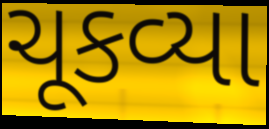
ચૂકવ્યા